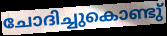
ചോദിച്ചുകൊണ്ടു്